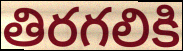
తిరగలికి